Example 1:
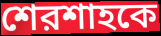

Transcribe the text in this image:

শেরশাহকে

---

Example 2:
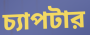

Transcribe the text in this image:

চ্যাপটার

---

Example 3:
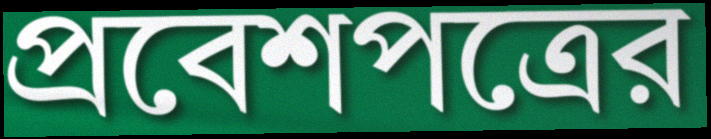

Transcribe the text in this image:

প্রবেশপত্রের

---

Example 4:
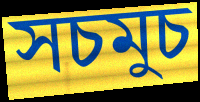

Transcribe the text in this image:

সচমুচ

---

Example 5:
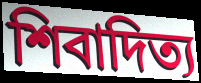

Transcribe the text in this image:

শিবাদিত্য